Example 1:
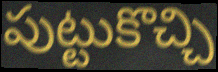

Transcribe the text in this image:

పుట్టుకొచ్చి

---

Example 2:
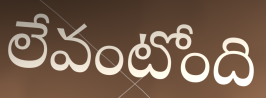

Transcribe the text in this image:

లేవంటోంది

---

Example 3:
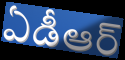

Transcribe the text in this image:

ఏడీఆర్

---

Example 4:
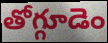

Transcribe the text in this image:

తోగ్గూడెం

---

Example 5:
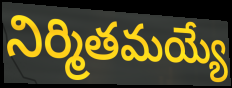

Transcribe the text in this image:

నిర్మితమయ్యే